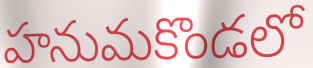
హనుమకొండలో